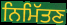
ਨਿਮਿੱਤਣ